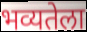
भव्यतेला